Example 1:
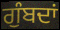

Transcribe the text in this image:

ਗੁੰਬਦਾਂ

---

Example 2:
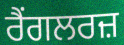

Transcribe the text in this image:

ਰੈਂਗਲਰਜ਼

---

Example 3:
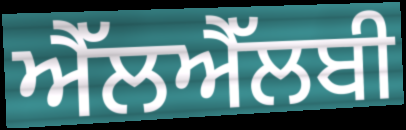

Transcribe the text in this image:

ਐੱਲਐੱਲਬੀ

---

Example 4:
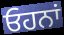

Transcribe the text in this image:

ਓਹਨਾਂ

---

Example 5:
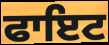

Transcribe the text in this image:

ਫਾਇਟ